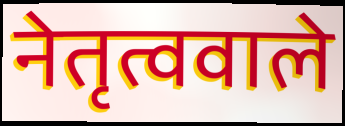
नेतृत्ववाले